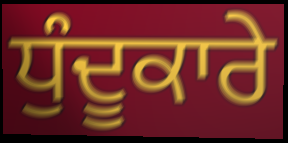
ਧੁੰਦੂਕਾਰੇ